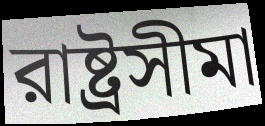
রাষ্ট্রসীমা